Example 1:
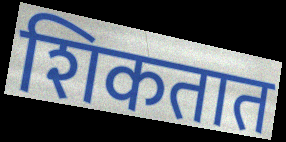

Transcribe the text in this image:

शिकतात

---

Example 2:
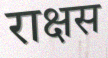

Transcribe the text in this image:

राक्षस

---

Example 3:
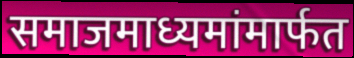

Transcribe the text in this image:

समाजमाध्यमांमार्फत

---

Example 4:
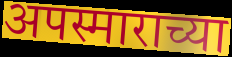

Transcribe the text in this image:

अपस्माराच्या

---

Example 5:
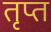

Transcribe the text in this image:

तृप्त